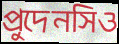
প্রুদেনসিও